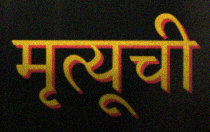
मृत्यूची